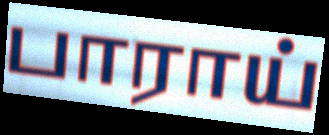
பாராய்